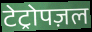
टेट्रोपज़ल